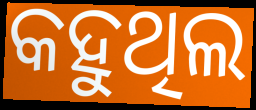
କହୁଥିଲ